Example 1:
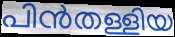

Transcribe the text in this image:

പിൻതള്ളിയ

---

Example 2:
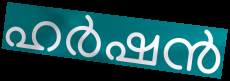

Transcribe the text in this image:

ഹർഷൻ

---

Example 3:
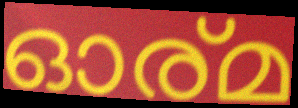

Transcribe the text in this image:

ഓര്മ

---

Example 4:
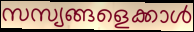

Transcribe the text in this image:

സസ്യങ്ങളെക്കാൾ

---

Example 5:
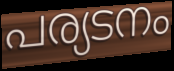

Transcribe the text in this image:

പര്യടനം